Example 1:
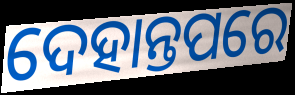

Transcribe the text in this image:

ଦେହାନ୍ତପରେ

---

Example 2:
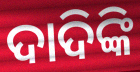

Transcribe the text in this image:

ଦାଦିଙ୍କି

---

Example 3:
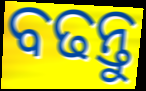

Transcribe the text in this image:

ବଢନ୍ତୁ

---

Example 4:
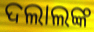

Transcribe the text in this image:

ଦଲାଲଙ୍କ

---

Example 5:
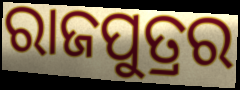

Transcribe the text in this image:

ରାଜପୁତ୍ରର